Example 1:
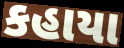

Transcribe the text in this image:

કહાયા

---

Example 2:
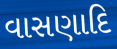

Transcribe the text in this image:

વાસણાદિ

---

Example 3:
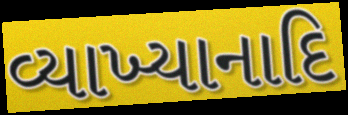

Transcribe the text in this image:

વ્યાખ્યાનાદિ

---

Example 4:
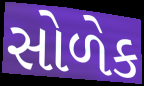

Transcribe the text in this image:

સોળેક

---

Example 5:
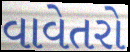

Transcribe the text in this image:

વાવેતરો